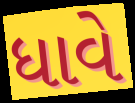
ધાવે